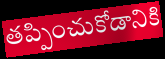
తప్పించుకోడానికి